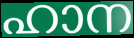
ഹാന